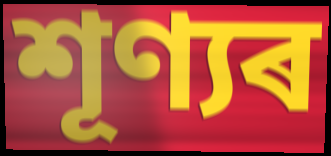
শূণ্যৰ